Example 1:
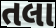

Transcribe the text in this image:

તલા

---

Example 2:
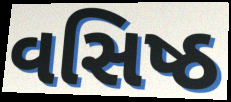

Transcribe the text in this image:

વસિષ્ઠ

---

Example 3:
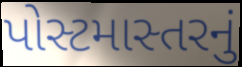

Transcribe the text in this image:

પોસ્ટમાસ્તરનું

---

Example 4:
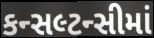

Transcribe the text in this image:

કન્સલ્ટન્સીમાં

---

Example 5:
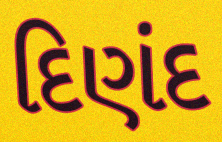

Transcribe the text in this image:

દિણંદ